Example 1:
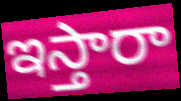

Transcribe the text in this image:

ఇస్తారా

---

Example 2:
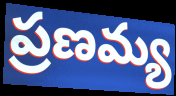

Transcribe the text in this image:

ప్రణమ్య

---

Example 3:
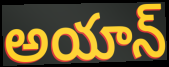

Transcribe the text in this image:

అయాన్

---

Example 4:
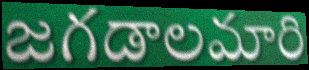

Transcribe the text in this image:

జగడాలమారి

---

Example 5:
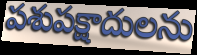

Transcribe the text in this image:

పశుపక్షాదులను